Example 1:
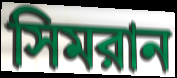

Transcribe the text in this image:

সিমরান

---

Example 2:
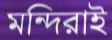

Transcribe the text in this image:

মন্দিরাই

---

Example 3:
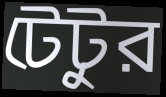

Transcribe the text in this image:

টেটুর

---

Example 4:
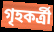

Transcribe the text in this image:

গৃহকর্ত্রী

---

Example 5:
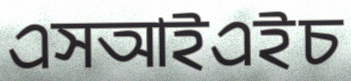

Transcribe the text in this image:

এসআইএইচ